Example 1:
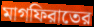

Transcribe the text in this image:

মাগফিরাতের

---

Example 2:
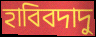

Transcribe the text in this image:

হাবিবদাদু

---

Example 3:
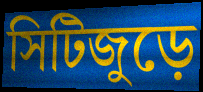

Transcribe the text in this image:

সিটিজুড়ে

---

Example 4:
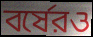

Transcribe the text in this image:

বর্ষেরও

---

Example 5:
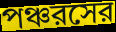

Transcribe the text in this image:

পঞ্চরসের